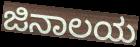
ಜಿನಾಲಯ